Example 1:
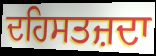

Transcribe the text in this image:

ਦਹਿਸਤਜ਼ਦਾ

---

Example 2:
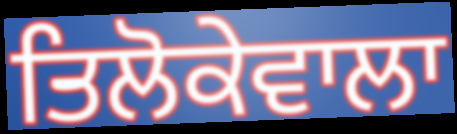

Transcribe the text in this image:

ਤਿਲੋਕੇਵਾਲਾ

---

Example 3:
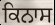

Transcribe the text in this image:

ਕਿਨਾਸ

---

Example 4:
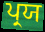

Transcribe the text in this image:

ਪ੍ਰਯ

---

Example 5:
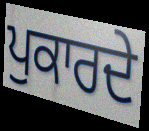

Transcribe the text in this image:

ਪੁਕਾਰਦੇ